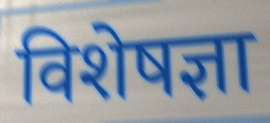
विशेषज्ञा